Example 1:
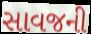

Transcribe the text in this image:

સાવજની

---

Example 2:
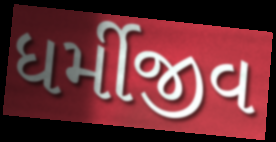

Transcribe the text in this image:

ધર્મીજીવ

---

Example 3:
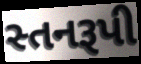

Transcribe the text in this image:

સ્તનરૂપી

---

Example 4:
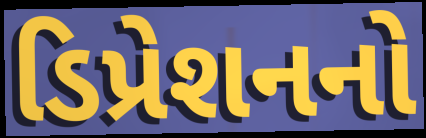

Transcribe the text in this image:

ડિપ્રેશનનો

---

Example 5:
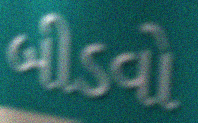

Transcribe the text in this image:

બીડવો